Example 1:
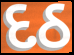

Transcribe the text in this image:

દઠ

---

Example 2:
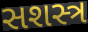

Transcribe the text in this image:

સશસ્ત્ર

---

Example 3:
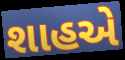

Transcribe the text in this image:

શાહએ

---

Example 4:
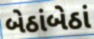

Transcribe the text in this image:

બેઠાંબેઠાં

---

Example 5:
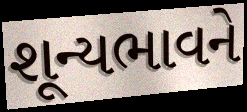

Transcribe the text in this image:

શૂન્યભાવને